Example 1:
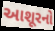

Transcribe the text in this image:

આશૂરનો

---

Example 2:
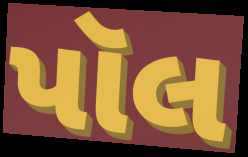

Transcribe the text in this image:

પૉલ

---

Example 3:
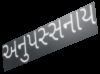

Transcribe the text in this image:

અનુપસ્સનાય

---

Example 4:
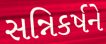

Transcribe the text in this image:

સન્નિકર્ષને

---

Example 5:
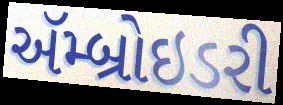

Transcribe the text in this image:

ઍમ્બ્રોઇડરી